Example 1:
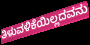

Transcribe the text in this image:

ತಿಳುವಳಿಕೆಯಿಲ್ಲದವನು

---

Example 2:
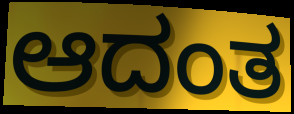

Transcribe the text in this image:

ಆದಂತ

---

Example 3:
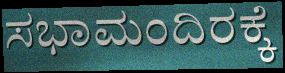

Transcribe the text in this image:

ಸಭಾಮಂದಿರಕ್ಕೆ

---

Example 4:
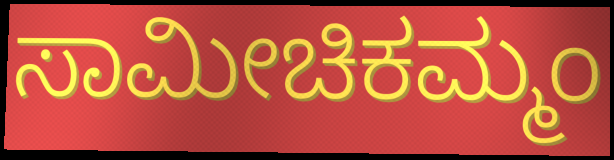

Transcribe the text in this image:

ಸಾಮೀಚಿಕಮ್ಮಂ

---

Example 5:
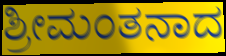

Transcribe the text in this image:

ಶ್ರೀಮಂತನಾದ